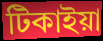
টিকাইয়া